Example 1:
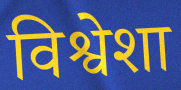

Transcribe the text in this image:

विश्वेशा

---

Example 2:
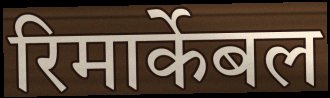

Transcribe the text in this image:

रिमार्केबल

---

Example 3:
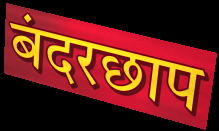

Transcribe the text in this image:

बंदरछाप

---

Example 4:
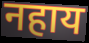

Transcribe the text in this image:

नहाय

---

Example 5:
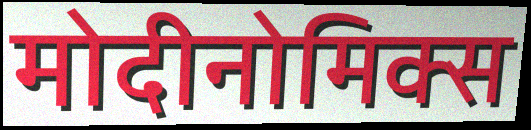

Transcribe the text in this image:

मोदीनोमिक्स